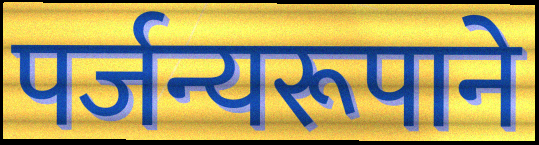
पर्जन्यरूपाने